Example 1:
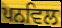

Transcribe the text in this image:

ਪਨਵਿਲ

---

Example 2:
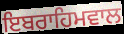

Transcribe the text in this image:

ਇਬਰਾਹਿਮਵਾਲ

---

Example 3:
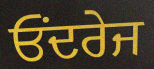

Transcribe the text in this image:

ਓਂਦਰੇਜ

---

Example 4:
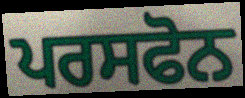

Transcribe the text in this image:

ਪਰਸਫੋਨ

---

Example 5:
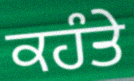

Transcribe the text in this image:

ਕਹੰਤੇ